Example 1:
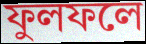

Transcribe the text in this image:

ফুলফলে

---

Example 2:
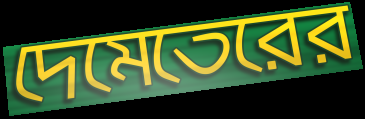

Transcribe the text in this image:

দেমেতেরের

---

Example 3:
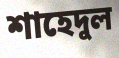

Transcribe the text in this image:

শাহেদুল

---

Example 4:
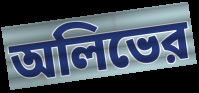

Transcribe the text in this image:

অলিভের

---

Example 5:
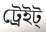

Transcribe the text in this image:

ট্রেইট্